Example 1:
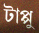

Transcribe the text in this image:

টাপ্পু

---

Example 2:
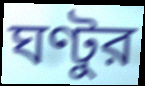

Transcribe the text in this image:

ঘণ্টুর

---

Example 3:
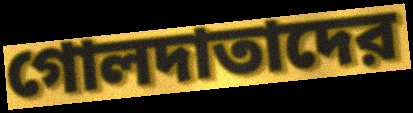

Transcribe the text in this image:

গোলদাতাদের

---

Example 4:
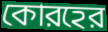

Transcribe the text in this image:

কোরহের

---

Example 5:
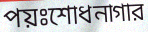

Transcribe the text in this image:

পয়ঃশোধনাগার